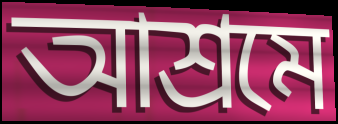
আশ্রমে